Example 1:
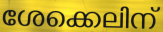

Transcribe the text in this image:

ശേക്കെലിന്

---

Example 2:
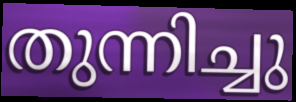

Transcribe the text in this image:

തുന്നിച്ചു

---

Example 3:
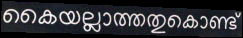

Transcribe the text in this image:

കൈയല്ലാത്തതുകൊണ്ട്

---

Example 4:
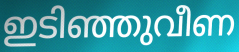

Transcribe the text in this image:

ഇടിഞ്ഞുവീണ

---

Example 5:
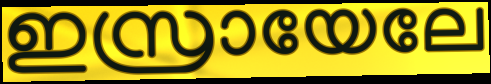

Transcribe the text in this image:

ഇസ്രായേലേ